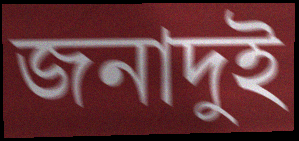
জনাদুই